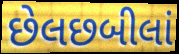
છેલછબીલાં